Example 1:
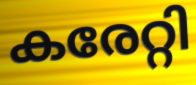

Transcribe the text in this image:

കരേറ്റി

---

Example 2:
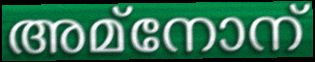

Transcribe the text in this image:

അമ്നോന്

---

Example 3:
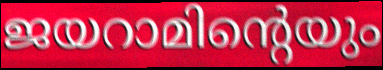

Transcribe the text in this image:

ജയറാമിന്റെയും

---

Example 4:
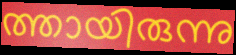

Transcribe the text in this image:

ത്തായിരുന്നു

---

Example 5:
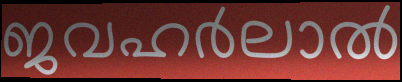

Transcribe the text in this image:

ജവഹർലാൽ